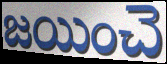
జయించె